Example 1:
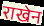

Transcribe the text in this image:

राखेन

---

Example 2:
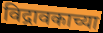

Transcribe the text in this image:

विद्रावकाच्या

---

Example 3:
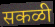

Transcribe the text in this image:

सकळी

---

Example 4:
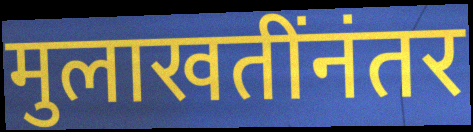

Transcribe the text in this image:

मुलाखतींनंतर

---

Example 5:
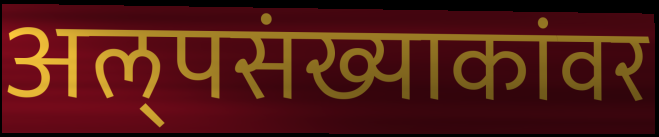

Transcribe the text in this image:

अल्पसंख्याकांवर